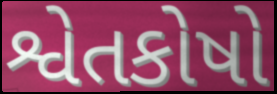
શ્વેતકોષો